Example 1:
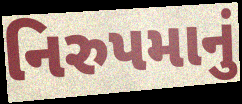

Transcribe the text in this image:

નિરુપમાનું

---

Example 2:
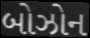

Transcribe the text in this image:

બોઝોન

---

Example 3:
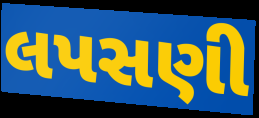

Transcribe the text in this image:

લપસણી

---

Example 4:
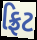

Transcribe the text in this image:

ફ્રિટ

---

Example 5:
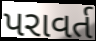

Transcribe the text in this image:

પરાવર્ત